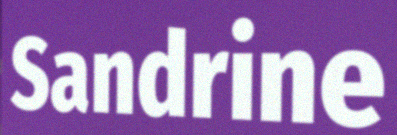
Sandrine